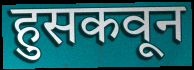
हुसकवून